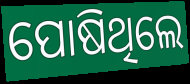
ପୋଷିଥିଲେ